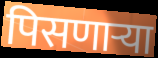
पिसणाऱ्या